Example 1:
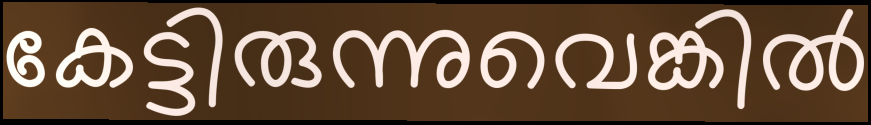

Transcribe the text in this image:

കേട്ടിരുന്നുവെങ്കിൽ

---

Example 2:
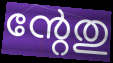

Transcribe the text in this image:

ന്റേതു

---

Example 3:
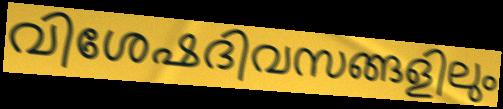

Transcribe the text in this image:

വിശേഷദിവസങ്ങളിലും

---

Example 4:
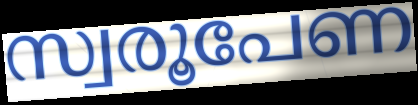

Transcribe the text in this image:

സ്വരൂപേണ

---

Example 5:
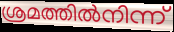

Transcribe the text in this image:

ശ്രമത്തിൽനിന്ന്